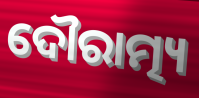
ଦୌରାତ୍ମ୍ୟ